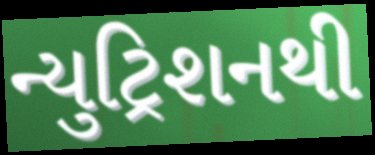
ન્યુટ્રિશનથી